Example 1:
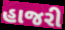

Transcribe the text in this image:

હાજરી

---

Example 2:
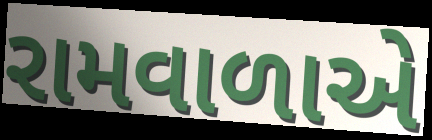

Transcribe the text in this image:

રામવાળાએ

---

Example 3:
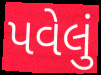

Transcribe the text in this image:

પવેલું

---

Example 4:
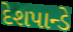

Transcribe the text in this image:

દેશપાન્ડે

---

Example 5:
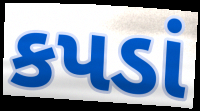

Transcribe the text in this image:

કપડાં